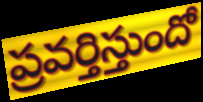
ప్రవర్తిస్తుందో